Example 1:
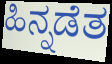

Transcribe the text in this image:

ಹಿನ್ನಡೆತ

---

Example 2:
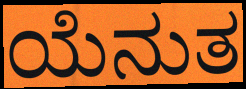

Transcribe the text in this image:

ಯೆನುತ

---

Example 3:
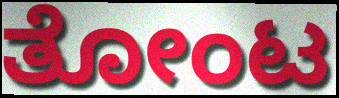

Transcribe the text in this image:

ತೋಂಟ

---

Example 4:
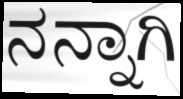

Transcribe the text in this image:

ನನ್ನಾಗಿ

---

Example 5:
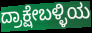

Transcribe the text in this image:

ದ್ರಾಕ್ಷೇಬಳ್ಳಿಯ